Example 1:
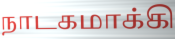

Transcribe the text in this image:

நாடகமாக்கி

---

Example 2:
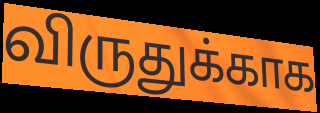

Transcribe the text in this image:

விருதுக்காக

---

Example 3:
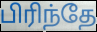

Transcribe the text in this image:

பிரிந்தே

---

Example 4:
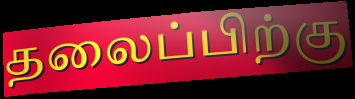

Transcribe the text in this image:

தலைப்பிற்கு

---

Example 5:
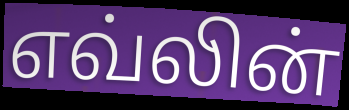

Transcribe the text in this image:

எவ்லின்